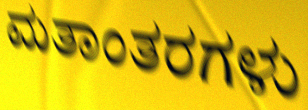
ಮತಾಂತರಗಳು